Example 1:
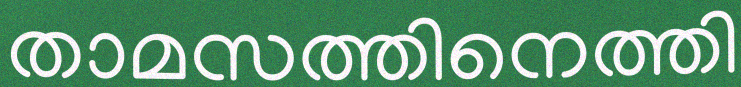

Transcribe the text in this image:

താമസത്തിനെത്തി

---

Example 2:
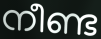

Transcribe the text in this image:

നീണ്ട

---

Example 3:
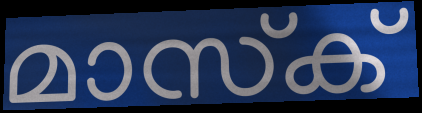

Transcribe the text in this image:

മാസ്‌ക്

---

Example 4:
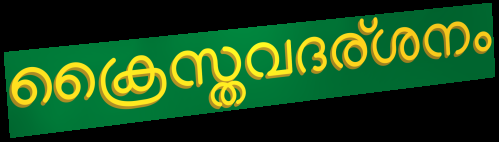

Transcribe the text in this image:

ക്രൈസ്തവദര്ശനം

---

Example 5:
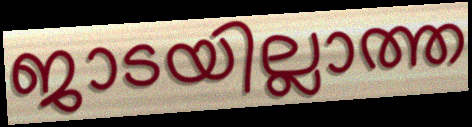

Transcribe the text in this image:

ജാടയില്ലാത്ത